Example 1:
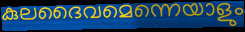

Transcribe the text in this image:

കുലദൈവമെന്നെയാളും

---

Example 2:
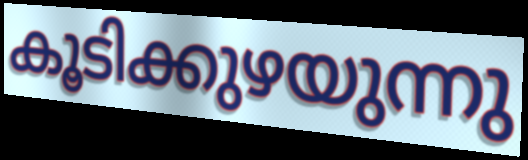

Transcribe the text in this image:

കൂടിക്കുഴയുന്നു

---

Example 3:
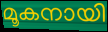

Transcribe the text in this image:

മൂകനായി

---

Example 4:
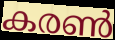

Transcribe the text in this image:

കരൺ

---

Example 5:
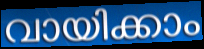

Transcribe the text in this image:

വായിക്കാം